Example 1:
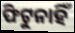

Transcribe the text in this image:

ଫିଟୁନାହିଁ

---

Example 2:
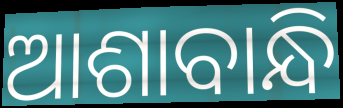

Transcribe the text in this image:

ଆଶାବାନ୍ଧି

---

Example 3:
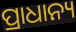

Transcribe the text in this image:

ପ୍ରାଧାନ୍ୟ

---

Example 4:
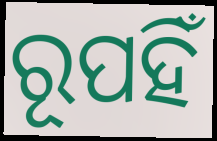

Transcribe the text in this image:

ରୂପହିଁ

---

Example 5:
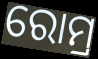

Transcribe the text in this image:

ରୋମ୍ର